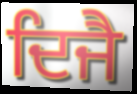
ਦਿਜੈ